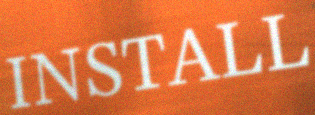
INSTALL